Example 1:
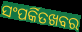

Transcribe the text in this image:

ସଂପର୍କିତଖବର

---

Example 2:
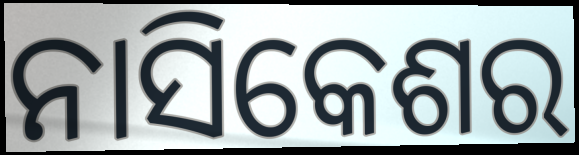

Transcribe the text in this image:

ନାସିକେଶର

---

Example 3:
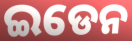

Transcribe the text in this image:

ଇଡେନ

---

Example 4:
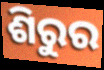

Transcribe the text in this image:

ଶିରୁର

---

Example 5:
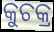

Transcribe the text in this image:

କୁଚକ୍ର